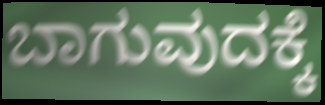
ಬಾಗುವುದಕ್ಕೆ